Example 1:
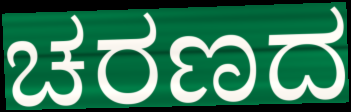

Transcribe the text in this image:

ಚರಣದ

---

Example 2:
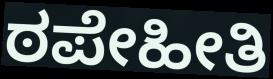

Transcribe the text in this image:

ಠಪೇಹೀತಿ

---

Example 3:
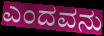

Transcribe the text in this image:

ಎಂದವನು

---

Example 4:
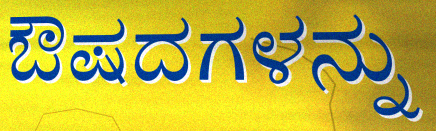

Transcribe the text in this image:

ಔಷದಗಳನ್ನು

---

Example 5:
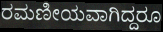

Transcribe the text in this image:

ರಮಣೀಯವಾಗಿದ್ದರೂ